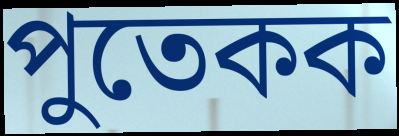
পুতেকক